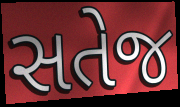
સતેજ